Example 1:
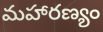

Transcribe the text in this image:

మహారణ్యం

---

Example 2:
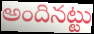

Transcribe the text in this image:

అందినట్టు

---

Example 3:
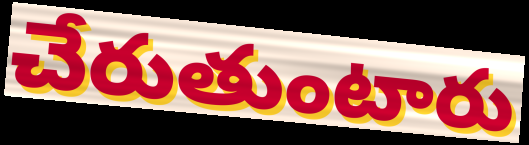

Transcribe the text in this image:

చేరుతుంటారు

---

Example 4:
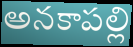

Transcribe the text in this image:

అనకాపల్లి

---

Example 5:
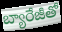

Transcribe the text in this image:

బ్యారేజీతో